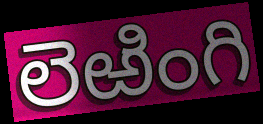
లెఱింగి